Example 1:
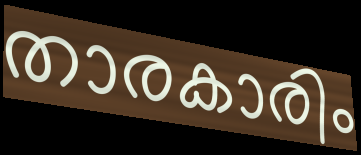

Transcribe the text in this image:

താരകാരിം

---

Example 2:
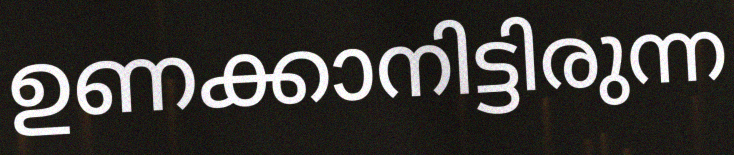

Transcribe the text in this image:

ഉണക്കാനിട്ടിരുന്ന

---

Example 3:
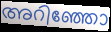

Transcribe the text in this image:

അറിഞ്ഞോ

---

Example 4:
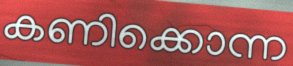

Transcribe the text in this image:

കണിക്കൊന്ന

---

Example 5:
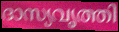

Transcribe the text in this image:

ദാസ്യവൃത്തി